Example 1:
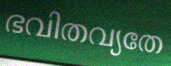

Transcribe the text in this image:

ഭവിതവ്യതേ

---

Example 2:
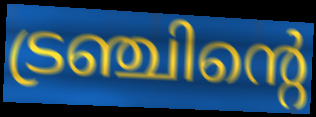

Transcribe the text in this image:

ട്രഞ്ചിന്റെ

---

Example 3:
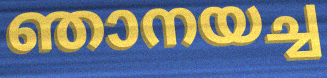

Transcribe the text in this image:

ഞാനയച്ച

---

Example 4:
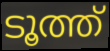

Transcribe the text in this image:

ടൂത്ത്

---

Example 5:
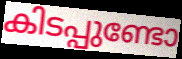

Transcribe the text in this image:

കിടപ്പുണ്ടോ